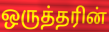
ஒருத்தரின்